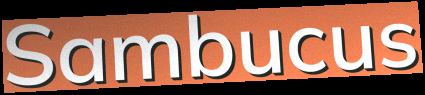
Sambucus